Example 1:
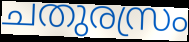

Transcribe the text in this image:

ചതുരസ്രം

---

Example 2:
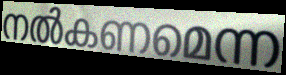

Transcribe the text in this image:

നൽകണമെന്ന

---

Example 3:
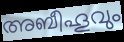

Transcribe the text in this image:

അബീഹൂവും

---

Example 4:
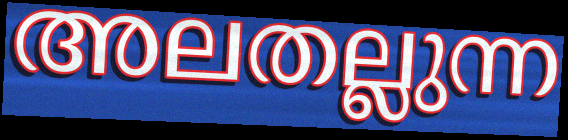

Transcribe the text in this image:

അലതല്ലുന്ന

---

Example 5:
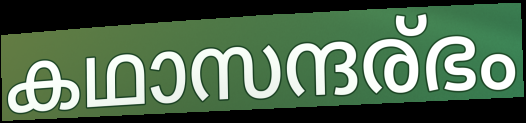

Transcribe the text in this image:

കഥാസന്ദര്ഭം